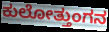
ಕುಲೋತ್ತುಂಗನ